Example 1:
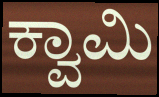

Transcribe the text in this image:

ಕ್ವಾಮಿ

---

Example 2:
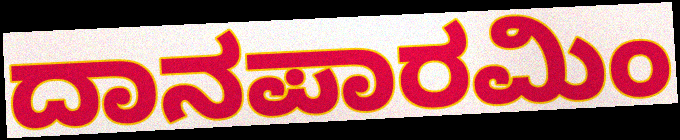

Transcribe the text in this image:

ದಾನಪಾರಮಿಂ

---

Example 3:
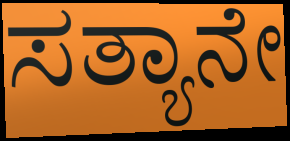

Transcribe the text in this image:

ಸತ್ಯಾನೇ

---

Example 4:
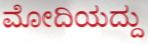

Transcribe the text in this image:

ಮೋದಿಯದ್ದು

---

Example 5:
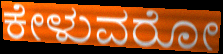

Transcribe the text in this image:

ಕೇಳುವರೋ